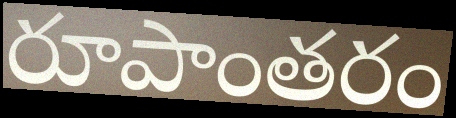
రూపాంతరం